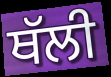
ਥੱਲੀ